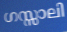
ഗസ്സാലി